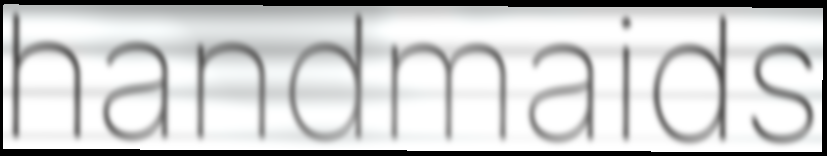
handmaids